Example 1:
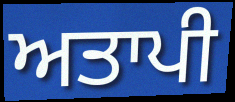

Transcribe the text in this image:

ਅਤਾਪੀ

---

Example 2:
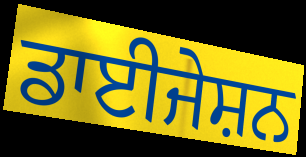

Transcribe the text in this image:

ਡਾਈਜੇਸ਼ਨ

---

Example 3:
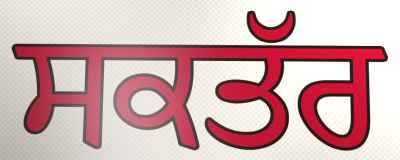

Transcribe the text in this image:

ਸਕਤੱਰ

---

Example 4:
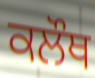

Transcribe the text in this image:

ਕਲੌਥ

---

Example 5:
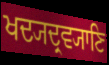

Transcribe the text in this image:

ਖਦ੍ਯਦ੍ਰਵ੍ਯਾਣਿ